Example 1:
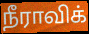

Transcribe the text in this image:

நீராவிக்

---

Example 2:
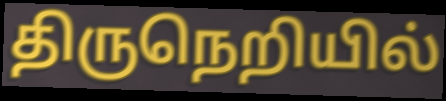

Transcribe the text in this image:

திருநெறியில்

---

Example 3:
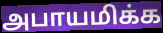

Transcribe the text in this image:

அபாயமிக்க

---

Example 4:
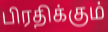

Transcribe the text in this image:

பிரதிக்கும்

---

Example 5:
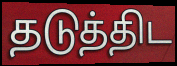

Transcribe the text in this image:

தடுத்திட